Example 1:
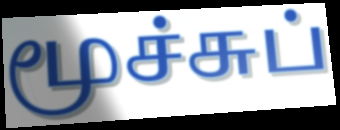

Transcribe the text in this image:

மூச்சுப்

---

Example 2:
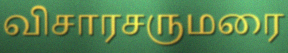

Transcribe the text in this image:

விசாரசருமரை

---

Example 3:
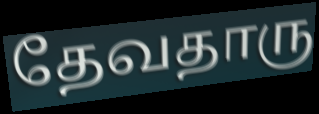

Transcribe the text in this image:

தேவதாரு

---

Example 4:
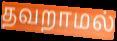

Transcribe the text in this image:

தவறாமல்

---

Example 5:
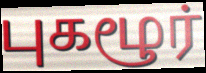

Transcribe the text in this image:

புகழூர்